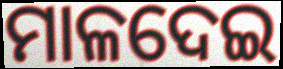
ମାଳଦେଇ